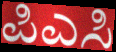
ಪಿಎಸಿ